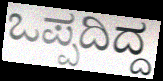
ಒಪ್ಪದಿದ್ದ